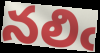
నలిఁ